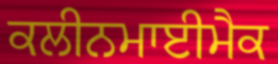
ਕਲੀਨਮਾਈਮੈਕ